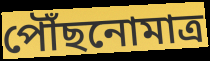
পৌঁছনোমাত্র